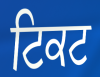
ਟਿਕਟ